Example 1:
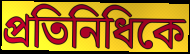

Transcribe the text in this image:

প্রতিনিধিকে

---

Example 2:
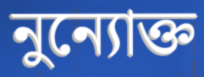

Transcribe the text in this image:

নুন্যোক্ত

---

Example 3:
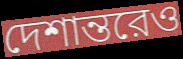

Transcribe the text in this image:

দেশান্তরেও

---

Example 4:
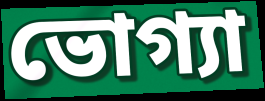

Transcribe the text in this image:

ভোগ্যা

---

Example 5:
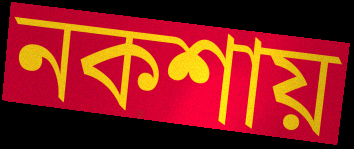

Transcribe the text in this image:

নকশায়